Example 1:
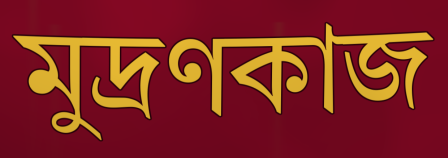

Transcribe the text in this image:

মুদ্রণকাজ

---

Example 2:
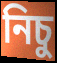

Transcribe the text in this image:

নিচু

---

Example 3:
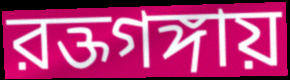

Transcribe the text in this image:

রক্তগঙ্গায়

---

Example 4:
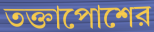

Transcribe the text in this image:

তক্তাপোশের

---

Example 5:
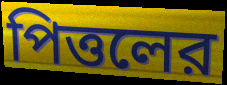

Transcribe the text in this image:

পিত্তলের